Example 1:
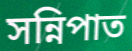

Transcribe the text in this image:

সন্নিপাত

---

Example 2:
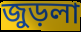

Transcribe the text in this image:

জুড়লা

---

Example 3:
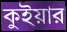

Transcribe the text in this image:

কুইয়ার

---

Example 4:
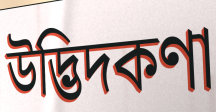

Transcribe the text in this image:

উদ্ভিদকণা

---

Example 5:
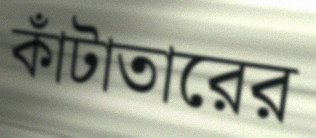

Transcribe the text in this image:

কাঁটাতারের